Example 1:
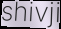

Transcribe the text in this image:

shivji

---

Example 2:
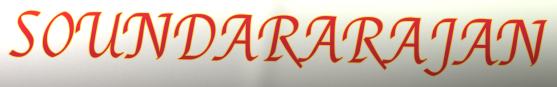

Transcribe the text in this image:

SOUNDARARAJAN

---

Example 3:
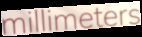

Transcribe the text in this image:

millimeters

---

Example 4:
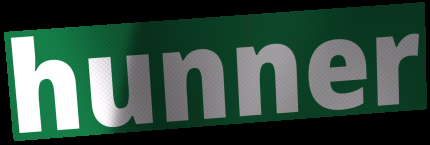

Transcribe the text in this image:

hunner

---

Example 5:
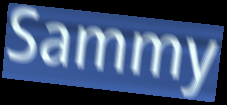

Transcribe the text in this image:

Sammy